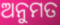
ଅନୁମତ